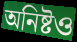
অনিষ্টও